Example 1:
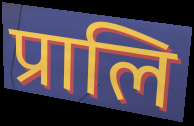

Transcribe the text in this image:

प्रालि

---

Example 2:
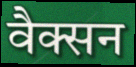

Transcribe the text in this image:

वैक्सन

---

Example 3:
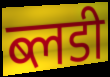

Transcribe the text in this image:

ब्लडी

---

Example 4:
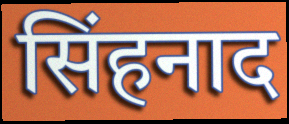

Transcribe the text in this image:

सिंहनाद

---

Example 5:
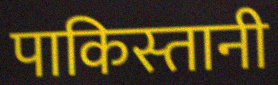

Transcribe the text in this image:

पाकिस्‍तानी